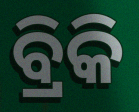
ବ୍ରିକି